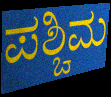
ಪಶ್ಚಿಮ